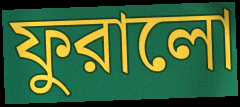
ফুরালো